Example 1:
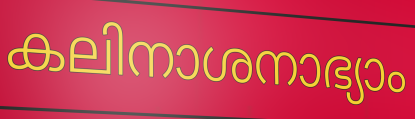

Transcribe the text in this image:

കലിനാശനാഭ്യാം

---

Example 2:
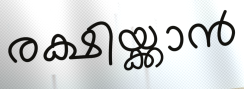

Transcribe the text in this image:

രക്ഷിയ്ക്കാൻ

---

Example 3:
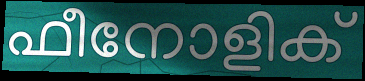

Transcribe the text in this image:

ഫീനോളിക്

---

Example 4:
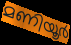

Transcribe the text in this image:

മണിയൂർ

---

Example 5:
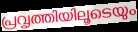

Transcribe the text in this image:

പ്രവൃത്തിയിലൂടെയും